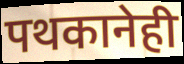
पथकानेही